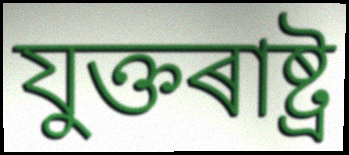
যুক্তৰাষ্ট্ৰ